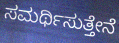
ಸಮರ್ಥಿಸುತ್ತೇನೆ